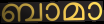
ബാമാ